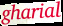
gharial